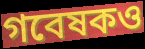
গবেষকও